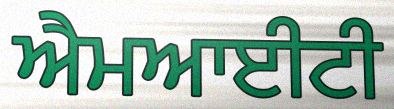
ਐਮਆਈਟੀ